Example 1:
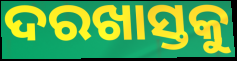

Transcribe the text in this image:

ଦରଖାସ୍ତକୁ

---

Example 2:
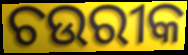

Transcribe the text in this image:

ଚଉରୀକ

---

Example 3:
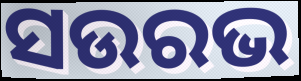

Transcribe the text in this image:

ସଉରଭ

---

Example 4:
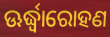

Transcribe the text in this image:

ଊର୍ଦ୍ଧ୍ୱାରୋହଣ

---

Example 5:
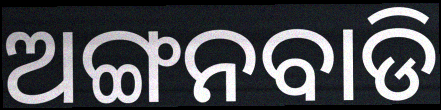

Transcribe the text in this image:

ଅଙ୍ଗନବାଡି